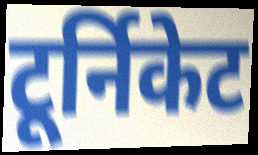
टूर्निकेट